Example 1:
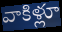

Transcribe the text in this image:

వాకిళ్లూ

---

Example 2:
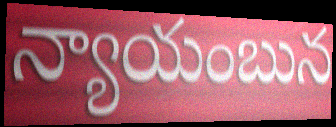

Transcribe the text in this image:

న్యాయంబున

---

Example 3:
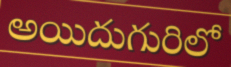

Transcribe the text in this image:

అయిదుగురిలో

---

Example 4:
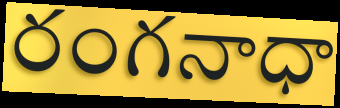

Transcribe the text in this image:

రంగనాధా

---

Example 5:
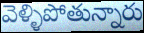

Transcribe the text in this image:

వెళ్ళిపోతున్నారు